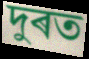
দুৰত